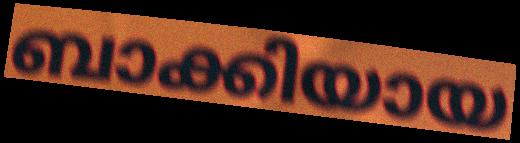
ബാക്കിയായ